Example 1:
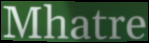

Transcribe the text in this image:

Mhatre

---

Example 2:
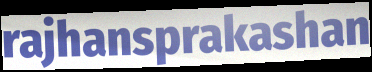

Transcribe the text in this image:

rajhansprakashan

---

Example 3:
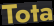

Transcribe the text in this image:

Tota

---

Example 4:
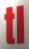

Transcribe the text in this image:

tl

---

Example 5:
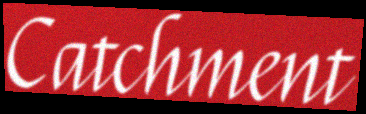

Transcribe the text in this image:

Catchment